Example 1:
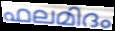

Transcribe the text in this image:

ഫലമിദം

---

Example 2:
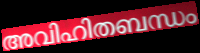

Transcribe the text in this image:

അവിഹിതബന്ധം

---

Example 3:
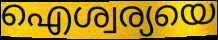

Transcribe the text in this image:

ഐശ്വര്യയെ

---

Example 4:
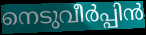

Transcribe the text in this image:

നെടുവീർപ്പിൻ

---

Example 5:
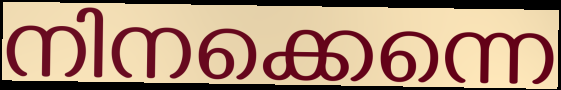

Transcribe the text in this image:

നിനക്കെന്നെ